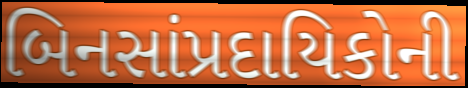
બિનસાંપ્રદાયિકોની